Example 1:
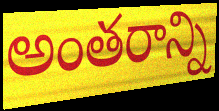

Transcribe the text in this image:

అంతరాన్ని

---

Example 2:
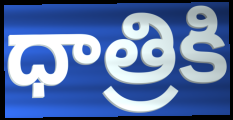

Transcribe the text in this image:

ధాత్రికి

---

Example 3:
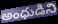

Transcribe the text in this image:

అంధుడిని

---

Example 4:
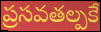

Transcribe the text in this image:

ప్రసవతల్పకే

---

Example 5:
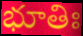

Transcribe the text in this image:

భూతిః